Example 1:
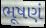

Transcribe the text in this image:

ભૂષણં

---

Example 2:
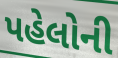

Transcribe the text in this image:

પહેલોની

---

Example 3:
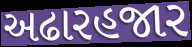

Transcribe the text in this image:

અઢારહજાર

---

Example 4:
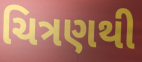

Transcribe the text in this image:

ચિત્રણથી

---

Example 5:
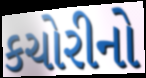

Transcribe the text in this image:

કચોરીનો